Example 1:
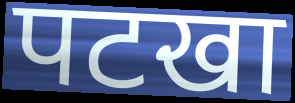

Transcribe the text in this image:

पटखा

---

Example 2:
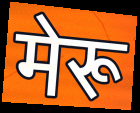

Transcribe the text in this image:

मेरू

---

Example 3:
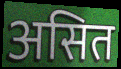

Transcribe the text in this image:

असित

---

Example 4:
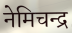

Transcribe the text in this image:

नेमिचन्द्र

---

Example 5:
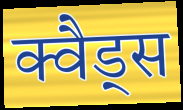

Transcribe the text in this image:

क्वैड्स